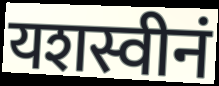
यशस्वीनं